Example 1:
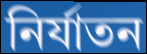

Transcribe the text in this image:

নির্যাতন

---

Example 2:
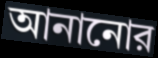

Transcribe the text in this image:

আনানোর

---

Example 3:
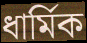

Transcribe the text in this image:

ধার্মিক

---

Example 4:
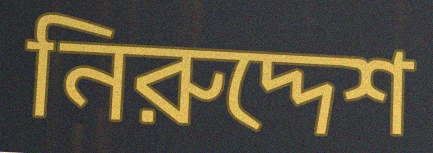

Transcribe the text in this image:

নিরুদ্দেশ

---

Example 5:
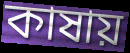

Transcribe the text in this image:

কাষায়